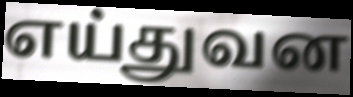
எய்துவன